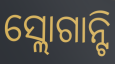
ସ୍ଲୋଗାନ୍ଟି